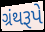
ગ્રંથરૂપે